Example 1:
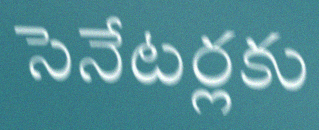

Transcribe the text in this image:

సెనేటర్లకు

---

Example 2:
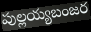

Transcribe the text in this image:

పుల్లయ్యబంజర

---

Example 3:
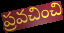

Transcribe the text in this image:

ప్రవచించి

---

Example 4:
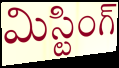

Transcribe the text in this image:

మిస్టింగ్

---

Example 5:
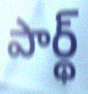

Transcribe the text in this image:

పార్థ్